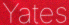
Yates